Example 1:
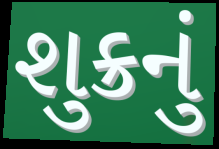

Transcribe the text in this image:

શુક્રનું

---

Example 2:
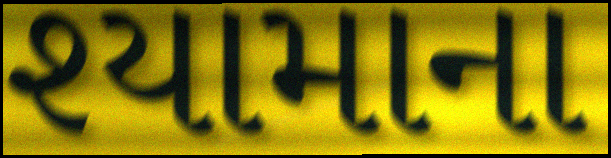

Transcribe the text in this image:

શ્યામાના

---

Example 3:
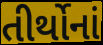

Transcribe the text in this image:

તીર્થોનાં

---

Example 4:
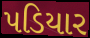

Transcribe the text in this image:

પડિયાર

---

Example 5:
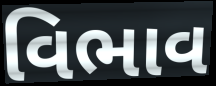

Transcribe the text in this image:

વિભાવ